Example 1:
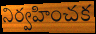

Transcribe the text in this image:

నిర్వహించక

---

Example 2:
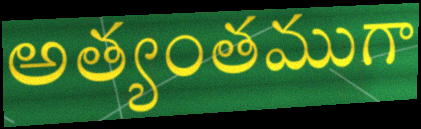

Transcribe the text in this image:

అత్యంతముగా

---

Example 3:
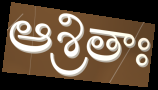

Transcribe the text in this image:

ఆశ్రితాః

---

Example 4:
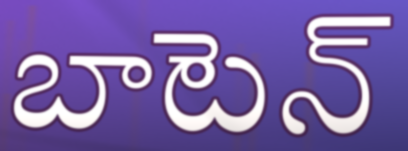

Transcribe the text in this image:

బాటెన్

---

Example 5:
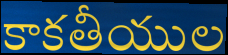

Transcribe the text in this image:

కాకతీయుల